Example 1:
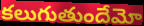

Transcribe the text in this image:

కలుగుతుందేమో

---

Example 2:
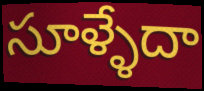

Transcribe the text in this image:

సూళ్ళేదా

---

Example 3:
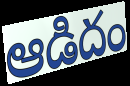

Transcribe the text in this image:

ఆడిదం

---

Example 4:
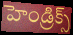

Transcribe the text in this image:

హెండ్రిక్స్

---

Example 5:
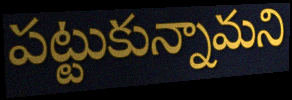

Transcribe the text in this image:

పట్టుకున్నామని